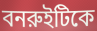
বনরুইটিকে